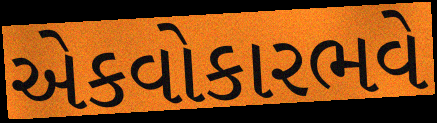
એકવોકારભવે